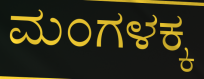
ಮಂಗಳಕ್ಕ